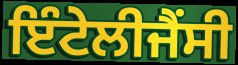
ਇੰਟੇਲੀਜੈਂਸੀ